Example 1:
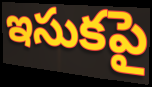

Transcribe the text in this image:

ఇసుకపై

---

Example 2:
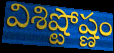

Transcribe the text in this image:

విశిష్టోష్ణం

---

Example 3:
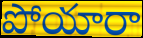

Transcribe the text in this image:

పోయారా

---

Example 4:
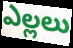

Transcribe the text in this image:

ఎల్లలు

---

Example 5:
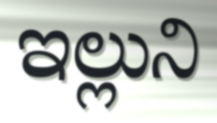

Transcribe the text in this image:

ఇల్లుని